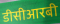
डीसीआरबी